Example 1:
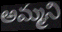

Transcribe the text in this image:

అమ్మని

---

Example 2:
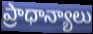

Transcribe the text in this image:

ప్రాధాన్యాలు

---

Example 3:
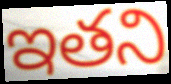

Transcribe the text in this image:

ఇతని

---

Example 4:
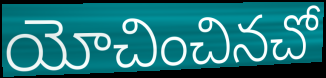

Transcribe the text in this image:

యోచించినచో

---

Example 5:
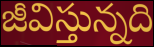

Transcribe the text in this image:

జీవిస్తున్నది